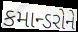
કમાન્ડરોને